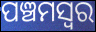
ପଞ୍ଚମସ୍ଵର